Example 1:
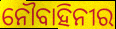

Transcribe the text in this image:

ନୌବାହିନୀର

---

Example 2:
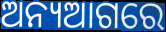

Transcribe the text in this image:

ଅନ୍ୟଆଗରେ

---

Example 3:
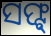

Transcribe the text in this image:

ସଫ୍ଟ୍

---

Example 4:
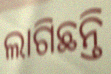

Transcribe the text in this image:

ଲାଗିଛନ୍ତି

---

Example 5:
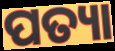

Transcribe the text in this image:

ପତ୍ୟା